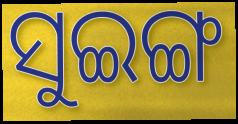
ସୁଇଙ୍ଗ